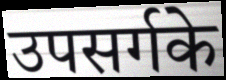
उपसर्गके